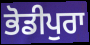
ਭੋਡੀਪੁਰਾ